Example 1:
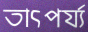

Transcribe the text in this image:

তাৎপৰ্য্য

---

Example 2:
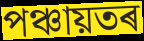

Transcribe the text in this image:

পঞ্চায়তৰ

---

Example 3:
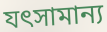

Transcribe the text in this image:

যৎসামান্য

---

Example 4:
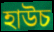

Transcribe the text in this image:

হাউচ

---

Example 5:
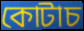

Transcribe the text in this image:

কোটাচ